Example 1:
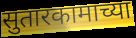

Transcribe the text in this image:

सुतारकामाच्या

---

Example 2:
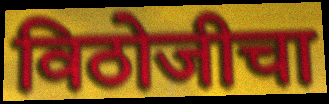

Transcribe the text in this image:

विठोजीचा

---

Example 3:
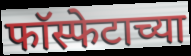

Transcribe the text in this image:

फॉस्फेटाच्या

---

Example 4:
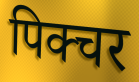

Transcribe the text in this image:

पिक्चर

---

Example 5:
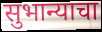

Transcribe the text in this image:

सुभान्याचा